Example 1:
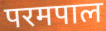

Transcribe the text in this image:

परमपाल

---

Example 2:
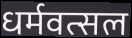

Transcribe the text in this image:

धर्मवत्सल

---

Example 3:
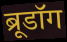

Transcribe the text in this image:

ब्रूडॉग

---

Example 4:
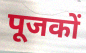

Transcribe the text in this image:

पूजकों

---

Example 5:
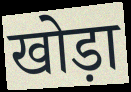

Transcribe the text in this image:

खोड़ा